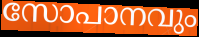
സോപാനവും